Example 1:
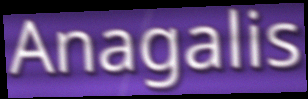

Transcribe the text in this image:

Anagalis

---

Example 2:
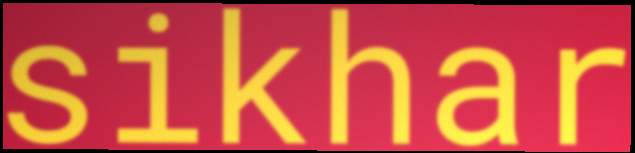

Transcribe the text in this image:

sikhar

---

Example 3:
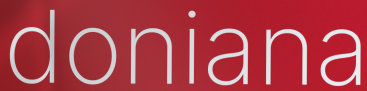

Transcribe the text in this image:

doniana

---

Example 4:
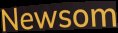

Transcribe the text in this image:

Newsom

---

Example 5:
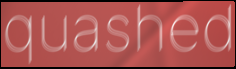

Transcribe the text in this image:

quashed